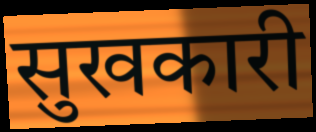
सुखकारी